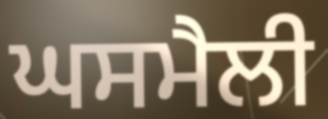
ਘਸਮੈਲੀ